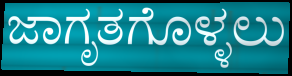
ಜಾಗೃತಗೊಳ್ಳಲು